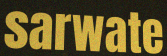
sarwate